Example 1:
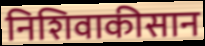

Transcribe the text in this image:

निशिवाकीसान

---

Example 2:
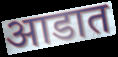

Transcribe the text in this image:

आडात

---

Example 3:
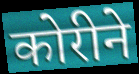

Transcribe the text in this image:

कोरीने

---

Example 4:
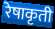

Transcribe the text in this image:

रेषाकृती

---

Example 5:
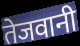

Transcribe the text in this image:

तेजवानी